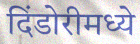
दिंडोरीमध्ये